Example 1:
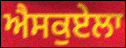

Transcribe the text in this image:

ਐਸਕੁਏਲਾ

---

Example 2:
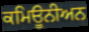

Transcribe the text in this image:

ਕਮਿਊਨੀਅਨ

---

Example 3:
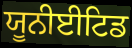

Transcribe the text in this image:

ਯੂਨੀਈਟਿਡ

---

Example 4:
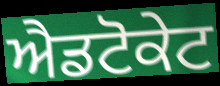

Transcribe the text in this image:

ਐਡਟੋਕੇਟ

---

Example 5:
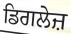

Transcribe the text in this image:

ਡਿਗਲੇਜ਼